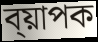
ব্য়াপক